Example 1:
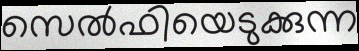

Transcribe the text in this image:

സെൽഫിയെടുക്കുന്ന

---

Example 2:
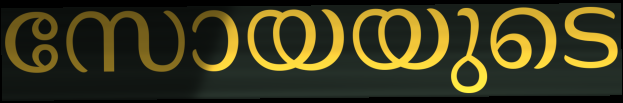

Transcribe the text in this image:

സോയയുടെ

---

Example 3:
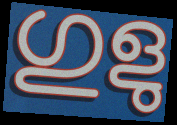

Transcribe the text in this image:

ഗുളു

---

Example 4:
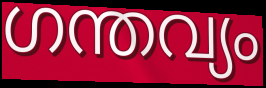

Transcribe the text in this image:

ഗന്തവ്യം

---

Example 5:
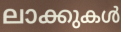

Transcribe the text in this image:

ലാക്കുകൾ